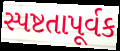
સ્પષ્ટતાપૂર્વક